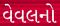
વેવલનો